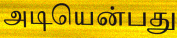
அடியென்பது